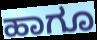
ಹಾಗೂ